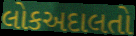
લોકઅદાલતો